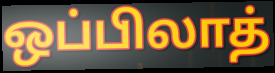
ஒப்பிலாத்